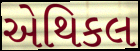
એથિકલ